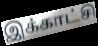
இக்காட்சி